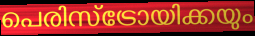
പെരിസ്ട്രോയിക്കയും